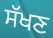
ਸੱਖਣ